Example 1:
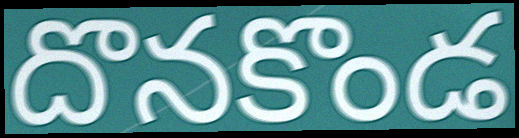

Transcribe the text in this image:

దొనకొండ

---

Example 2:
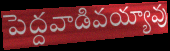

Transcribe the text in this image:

పెద్దవాడివయ్యావు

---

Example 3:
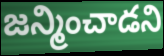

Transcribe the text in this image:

జన్మించాడని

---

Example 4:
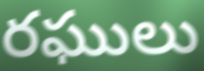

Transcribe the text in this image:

రఘులు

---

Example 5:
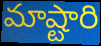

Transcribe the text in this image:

మాష్టారి